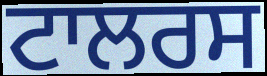
ਟਾਲਰਸ